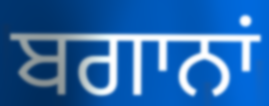
ਬਗਾਨਾਂ